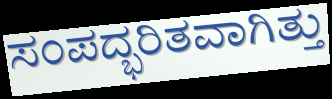
ಸಂಪದ್ಭರಿತವಾಗಿತ್ತು